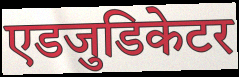
एडजुडिकेटर